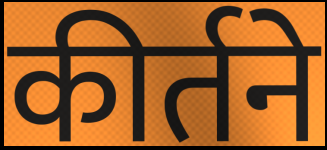
कीर्तने